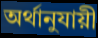
অর্থানুযায়ী